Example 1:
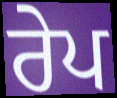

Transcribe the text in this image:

ਰੇਪ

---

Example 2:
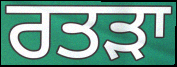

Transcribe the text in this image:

ਰਤੜਾ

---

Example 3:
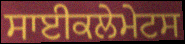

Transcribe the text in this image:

ਸਾਈਕਲੇਮੇਟਸ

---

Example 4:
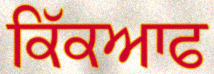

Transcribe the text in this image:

ਕਿੱਕਆਫ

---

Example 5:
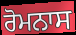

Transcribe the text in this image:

ਰੋਮਨਾਸ